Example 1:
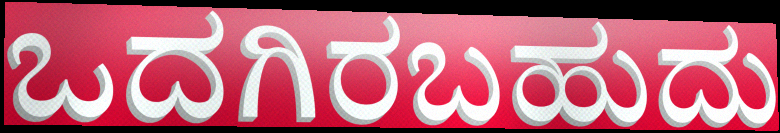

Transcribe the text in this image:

ಒದಗಿರಬಹುದು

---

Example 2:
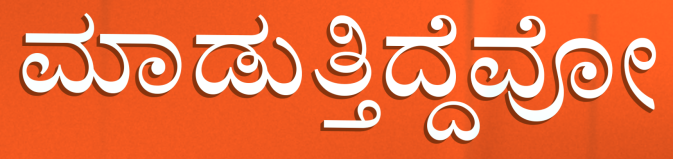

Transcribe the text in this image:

ಮಾಡುತ್ತಿದ್ದೆವೋ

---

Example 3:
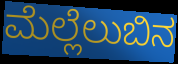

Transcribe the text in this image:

ಮೆಲ್ಲೆಲುಬಿನ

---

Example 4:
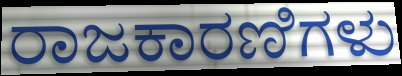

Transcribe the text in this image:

ರಾಜಕಾರಣಿಗಳು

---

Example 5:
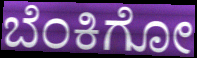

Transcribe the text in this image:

ಬೆಂಕಿಗೋ